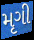
મૃગી